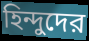
হিন্দুদের